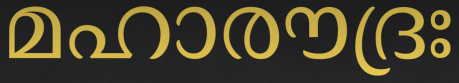
മഹാരൗദ്രഃ